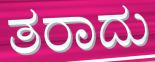
ತರಾದು